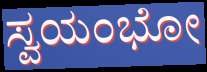
ಸ್ವಯಂಭೋ